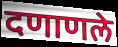
दणाणले